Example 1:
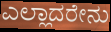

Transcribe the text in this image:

ಎಲ್ಲಾದರೇನು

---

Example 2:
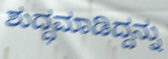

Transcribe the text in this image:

ಶುದ್ಧಮಾಡಿದ್ದನ್ನು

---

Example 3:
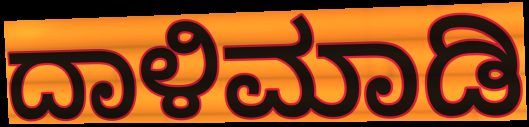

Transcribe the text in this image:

ದಾಳಿಮಾಡಿ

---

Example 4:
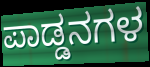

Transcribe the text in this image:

ಪಾಡ್ಡನಗಳ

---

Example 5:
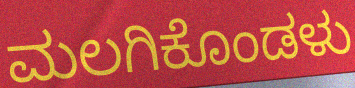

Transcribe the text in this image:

ಮಲಗಿಕೊಂಡಳು